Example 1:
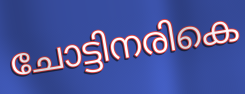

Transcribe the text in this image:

ചോട്ടിനരികെ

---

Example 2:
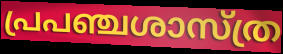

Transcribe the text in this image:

പ്രപഞ്ചശാസ്ത്ര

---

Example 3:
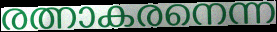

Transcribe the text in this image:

രത്നാകരനെന്ന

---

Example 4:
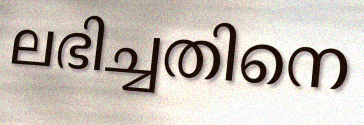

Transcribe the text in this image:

ലഭിച്ചതിനെ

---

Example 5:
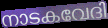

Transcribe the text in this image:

നാടകവേദി